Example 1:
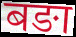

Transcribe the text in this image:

बङा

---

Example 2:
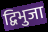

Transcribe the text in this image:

द्विभुजा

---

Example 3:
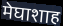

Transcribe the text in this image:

मेघाशाह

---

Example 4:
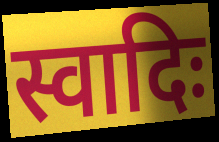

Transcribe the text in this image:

स्वादिः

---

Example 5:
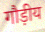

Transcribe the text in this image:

गौड़ीय